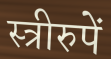
स्त्रीरुपें